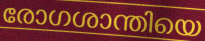
രോഗശാന്തിയെ